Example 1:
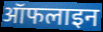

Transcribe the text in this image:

ऑफलाइन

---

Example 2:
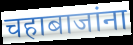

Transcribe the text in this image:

चहाबाजांना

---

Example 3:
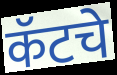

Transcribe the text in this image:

कॅटचे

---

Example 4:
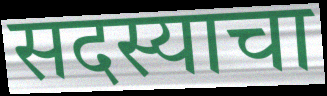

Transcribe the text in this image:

सदस्याचा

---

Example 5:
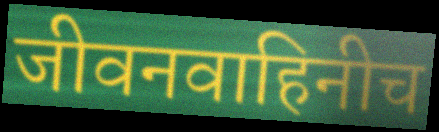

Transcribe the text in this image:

जीवनवाहिनीच